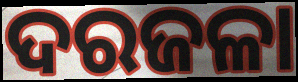
ଦରଜଳା